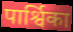
पार्श्विका